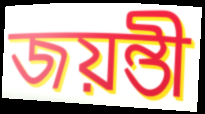
জয়ন্তী